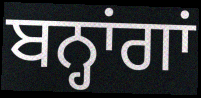
ਬਨ੍ਹ੍ਹ੍ਹਾਂਗਾਂ